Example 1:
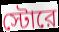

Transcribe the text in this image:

স্টোরে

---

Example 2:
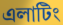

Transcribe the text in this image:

এলাটিং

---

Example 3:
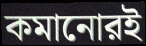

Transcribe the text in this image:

কমানোরই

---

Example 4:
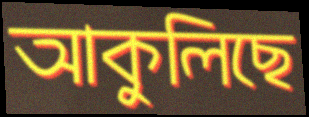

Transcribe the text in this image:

আকুলিছে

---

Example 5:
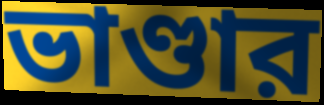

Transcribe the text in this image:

ভাণ্ডার